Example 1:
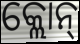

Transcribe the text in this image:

କ୍ଲୋନ୍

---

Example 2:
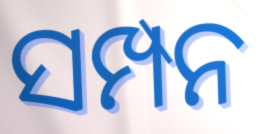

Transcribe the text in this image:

ସମ୍ପନ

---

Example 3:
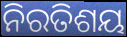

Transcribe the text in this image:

ନିରତିଶୟ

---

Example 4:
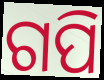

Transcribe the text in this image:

ଗପି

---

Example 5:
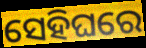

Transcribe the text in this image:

ସେହିଘରେ